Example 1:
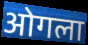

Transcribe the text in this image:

ओगला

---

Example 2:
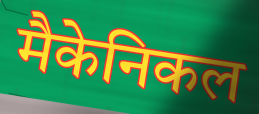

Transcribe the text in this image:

मैकेनिकल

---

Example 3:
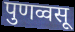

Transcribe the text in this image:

पुणव्वसू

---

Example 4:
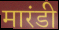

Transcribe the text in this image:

मारंडी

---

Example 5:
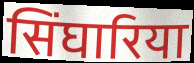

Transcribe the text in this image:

सिंघारिया